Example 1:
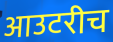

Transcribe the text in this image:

आउटरीच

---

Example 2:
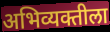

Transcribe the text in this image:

अभिव्यक्तीला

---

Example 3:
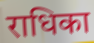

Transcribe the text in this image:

राधिका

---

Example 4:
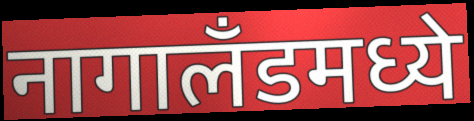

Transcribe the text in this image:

नागालॅंडमध्ये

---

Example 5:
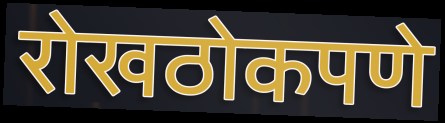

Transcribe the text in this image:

रोखठोकपणे